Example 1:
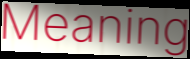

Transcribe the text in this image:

Meaning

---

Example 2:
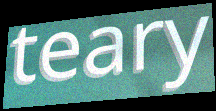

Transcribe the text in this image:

teary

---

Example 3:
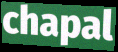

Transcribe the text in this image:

chapal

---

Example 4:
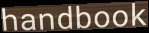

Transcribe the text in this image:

handbook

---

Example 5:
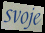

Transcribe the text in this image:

svoje